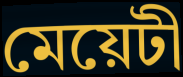
মেয়েটী